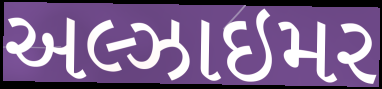
અલ્ઝાઇમર